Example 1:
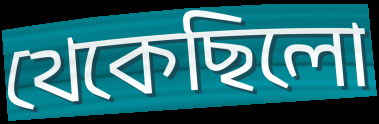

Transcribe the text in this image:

থেকেছিলো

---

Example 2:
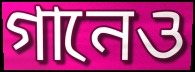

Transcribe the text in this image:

গানেও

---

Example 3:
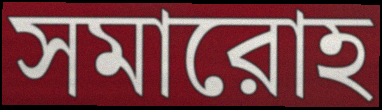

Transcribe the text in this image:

সমারোহ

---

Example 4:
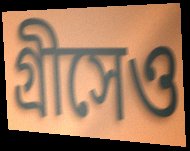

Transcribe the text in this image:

গ্রীসেও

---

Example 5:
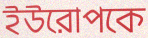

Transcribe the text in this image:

ইউরোপকে